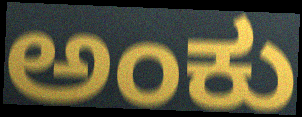
ಅಂಕು